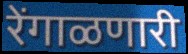
रेंगाळणारी